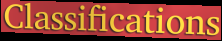
Classifications